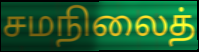
சமநிலைத்